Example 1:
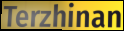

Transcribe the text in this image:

Terzhinan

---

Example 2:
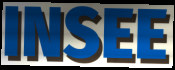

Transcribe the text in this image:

INSEE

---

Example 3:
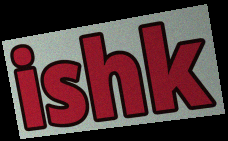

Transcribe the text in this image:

ishk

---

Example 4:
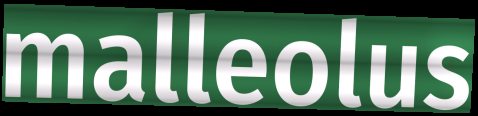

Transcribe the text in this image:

malleolus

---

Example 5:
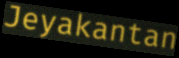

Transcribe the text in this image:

Jeyakantan